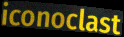
iconoclast